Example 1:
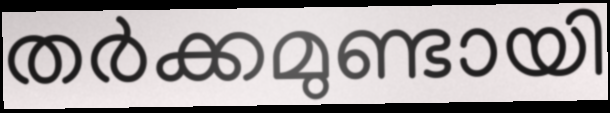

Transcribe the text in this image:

തർക്കമുണ്ടായി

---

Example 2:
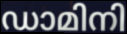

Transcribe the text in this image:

ഡാമിനി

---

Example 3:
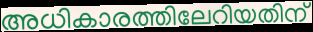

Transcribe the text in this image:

അധികാരത്തിലേറിയതിന്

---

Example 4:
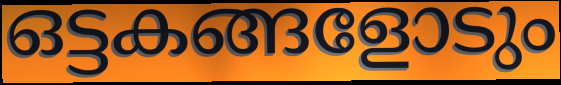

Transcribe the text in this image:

ഒട്ടകങ്ങളോടും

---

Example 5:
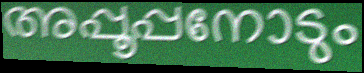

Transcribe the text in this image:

അപ്പൂപ്പനോടും